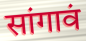
सांगावं